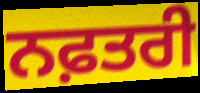
ਨਫ਼ਤਰੀ